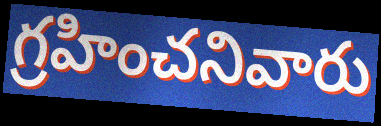
గ్రహించనివారు